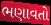
ભણાવતો